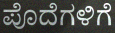
ಪೊದೆಗಳಿಗೆ